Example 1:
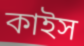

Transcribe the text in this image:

কাইস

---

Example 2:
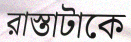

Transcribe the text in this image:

রাস্তাটাকে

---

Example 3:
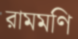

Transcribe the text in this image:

রামমণি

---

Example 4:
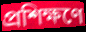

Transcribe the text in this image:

প্রশিক্ষণে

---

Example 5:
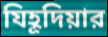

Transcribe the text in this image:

যিহূদিয়ার